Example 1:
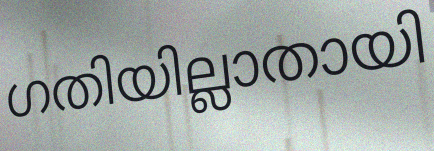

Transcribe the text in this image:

ഗതിയില്ലാതായി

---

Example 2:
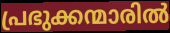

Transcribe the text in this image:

പ്രഭുക്കന്മാരിൽ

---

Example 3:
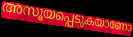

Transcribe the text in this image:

അസൂയപ്പെടുകയാണോ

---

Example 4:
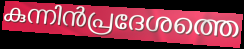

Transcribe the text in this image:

കുന്നിൻപ്രദേശത്തെ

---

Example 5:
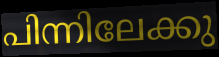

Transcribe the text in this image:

പിന്നിലേക്കു